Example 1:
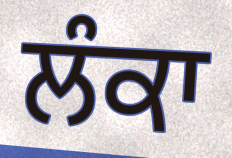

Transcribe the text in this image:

ਲੰਕਾ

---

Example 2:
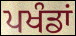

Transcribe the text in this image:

ਪਖੰਡਾਂ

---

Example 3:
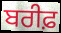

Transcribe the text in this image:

ਬਰੀਫ਼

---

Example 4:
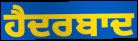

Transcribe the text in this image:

ਹੈਦਰਬਾਦ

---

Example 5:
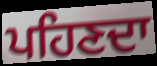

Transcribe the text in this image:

ਪਹਿਣਦਾ